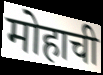
मोहाची